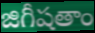
జిగీషతాం